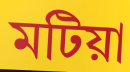
মটিয়া